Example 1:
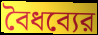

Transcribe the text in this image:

বৈধব্যের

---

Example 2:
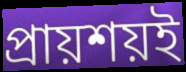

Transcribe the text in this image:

প্রায়শয়ই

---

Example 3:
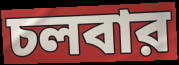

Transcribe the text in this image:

চলবার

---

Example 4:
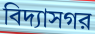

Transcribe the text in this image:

বিদ্যাসগর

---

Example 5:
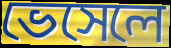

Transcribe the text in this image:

ভেসেলে